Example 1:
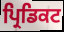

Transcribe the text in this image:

ਪ੍ਰਿਡਿਕਟ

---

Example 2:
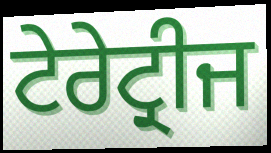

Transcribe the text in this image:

ਟੇਰੇਟ੍ਰੀਜ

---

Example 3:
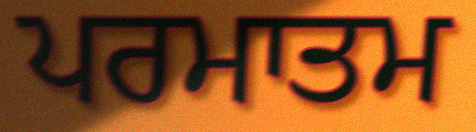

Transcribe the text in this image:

ਪਰਮਾਤਮ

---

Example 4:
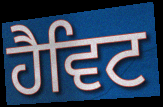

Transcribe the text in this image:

ਹੈਵਿਟ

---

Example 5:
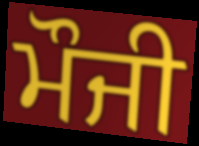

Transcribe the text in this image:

ਮੌਜੀ